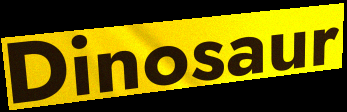
Dinosaur